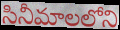
సినీమాలలోని